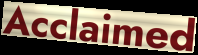
Acclaimed